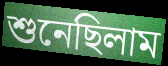
শুনেছিলাম